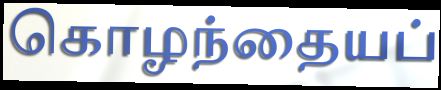
கொழந்தையப்